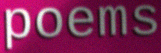
poems